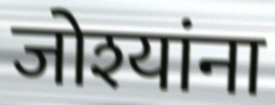
जोश्यांना